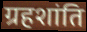
ग्रहशांति